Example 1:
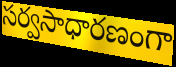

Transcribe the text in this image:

సర్వసాధారణంగా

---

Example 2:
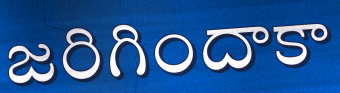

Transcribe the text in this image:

జరిగిందాకా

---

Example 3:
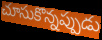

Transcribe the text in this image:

చూసుకొన్నప్పుడు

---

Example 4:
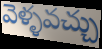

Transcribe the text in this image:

వెళ్ళవచ్చు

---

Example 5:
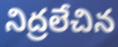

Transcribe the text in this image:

నిద్రలేచిన